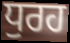
ਧੁਰਹ